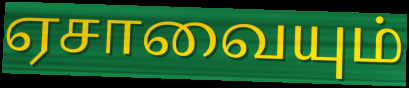
ஏசாவையும்